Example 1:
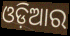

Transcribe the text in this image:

ଓଡ଼ିଆର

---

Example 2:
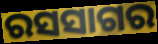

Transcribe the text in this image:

ରସସାଗର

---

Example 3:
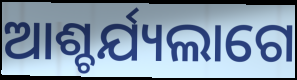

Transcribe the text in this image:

ଆଶ୍ଚର୍ଯ୍ୟଲାଗେ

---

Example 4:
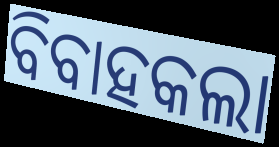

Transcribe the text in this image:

ବିବାହକଲା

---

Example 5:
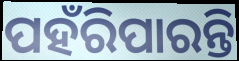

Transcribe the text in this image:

ପହଁରିପାରନ୍ତି